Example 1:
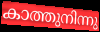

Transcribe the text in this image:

കാത്തുനിന്നു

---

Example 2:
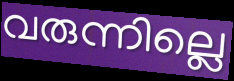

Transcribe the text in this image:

വരുന്നില്ലെ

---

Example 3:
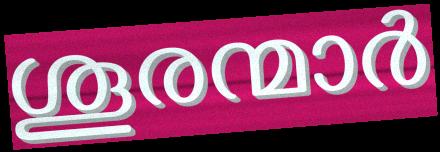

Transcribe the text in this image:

ശൂരന്മാർ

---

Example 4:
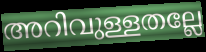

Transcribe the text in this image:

അറിവുള്ളതല്ലേ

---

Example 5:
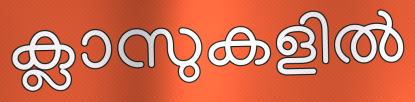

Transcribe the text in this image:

ക്ലാസുകളിൽ